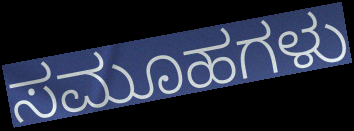
ಸಮೂಹಗಳು